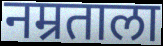
नम्रताला